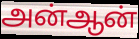
அன்ஆன்